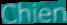
Chien